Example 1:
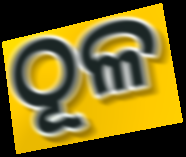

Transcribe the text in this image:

ଠୂଳ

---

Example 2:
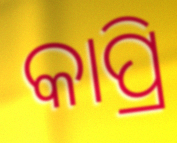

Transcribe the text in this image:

କାପ୍ରି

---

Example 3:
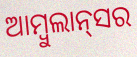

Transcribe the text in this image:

ଆମ୍ବୁଲାନ୍‌ସର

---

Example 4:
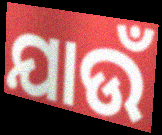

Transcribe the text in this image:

ଯାଉଁ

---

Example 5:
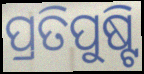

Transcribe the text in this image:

ପ୍ରତିପୁଷ୍ଟି